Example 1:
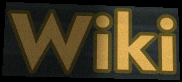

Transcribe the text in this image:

Wiki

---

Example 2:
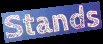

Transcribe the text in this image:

Stands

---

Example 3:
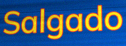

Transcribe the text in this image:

Salgado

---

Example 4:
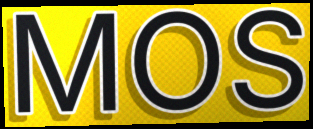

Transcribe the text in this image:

MOS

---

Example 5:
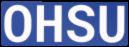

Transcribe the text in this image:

OHSU